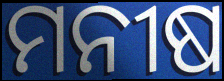
ମନୀଷ